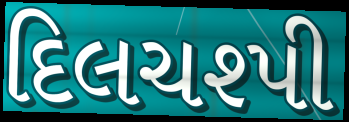
દિલચશ્પી